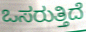
ಒಸರುತ್ತಿದೆ